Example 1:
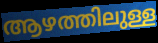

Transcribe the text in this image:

ആഴത്തിലുള്ള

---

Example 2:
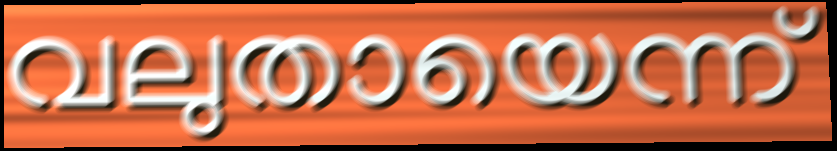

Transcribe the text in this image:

വലുതായെന്ന്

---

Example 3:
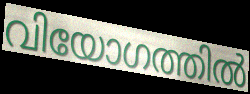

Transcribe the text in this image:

വിയോഗത്തിൽ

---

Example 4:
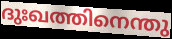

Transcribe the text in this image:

ദുഃഖത്തിനെന്തു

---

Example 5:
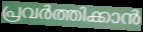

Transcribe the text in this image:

പ്രവർത്തിക്കാൻ